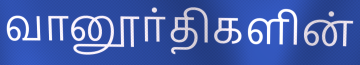
வானூர்திகளின்